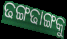
ଢଙ୍ଗଢାଙ୍ଗକୁ